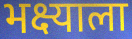
भक्ष्याला